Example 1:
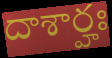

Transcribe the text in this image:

దాశార్హః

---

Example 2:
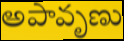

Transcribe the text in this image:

అపావృణు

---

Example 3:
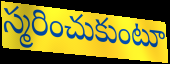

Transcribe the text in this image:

స్మరించుకుంటూ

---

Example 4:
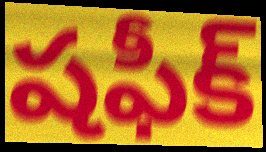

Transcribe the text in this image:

షఫీక్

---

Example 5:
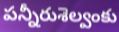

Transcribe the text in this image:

పన్నీరుశెల్వంకు